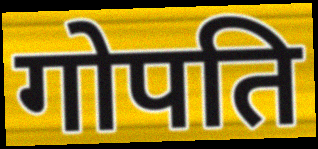
गोपति